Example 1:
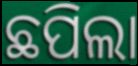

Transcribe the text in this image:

ଛପିଲା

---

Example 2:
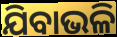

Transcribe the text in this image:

ଯିବାଭଳି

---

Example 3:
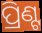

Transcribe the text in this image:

ପ୍ରିଣ୍ଟ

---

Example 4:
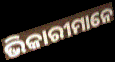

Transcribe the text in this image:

ଭିକାରୀମାନେ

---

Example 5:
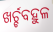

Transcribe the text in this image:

ଖର୍ଚ୍ଚବହୁଳ